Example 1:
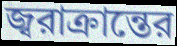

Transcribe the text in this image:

জ্বরাক্রান্তের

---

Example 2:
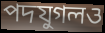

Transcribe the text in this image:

পদযুগলও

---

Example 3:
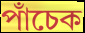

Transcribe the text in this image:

পাঁচেক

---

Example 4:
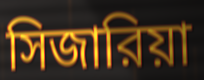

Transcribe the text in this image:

সিজারিয়া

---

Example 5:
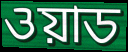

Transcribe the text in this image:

ওয়াড